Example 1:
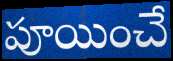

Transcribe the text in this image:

పూయించే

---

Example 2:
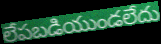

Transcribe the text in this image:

లేపబడియుండలేదు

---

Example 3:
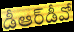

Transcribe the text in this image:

డీఆర్‌డీవో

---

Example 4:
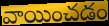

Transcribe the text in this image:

వాయించడం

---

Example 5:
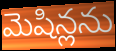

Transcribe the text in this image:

మెషిన్లను